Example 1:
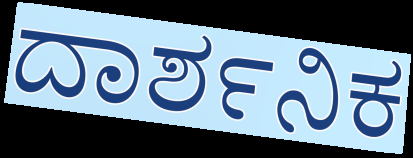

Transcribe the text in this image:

ದಾರ್ಶನಿಕ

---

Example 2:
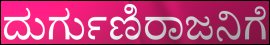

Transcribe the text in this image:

ದುರ್ಗುಣಿರಾಜನಿಗೆ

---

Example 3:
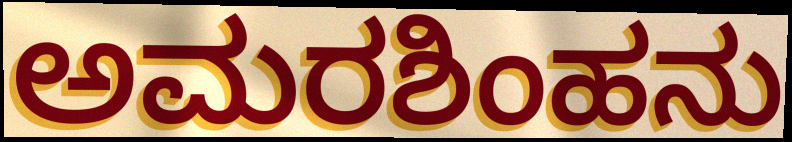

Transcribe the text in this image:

ಅಮರಶಿಂಹನು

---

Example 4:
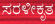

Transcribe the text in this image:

ಸರಳೀಕೃತ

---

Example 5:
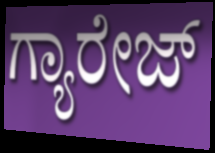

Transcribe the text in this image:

ಗ್ಯಾರೇಜ್